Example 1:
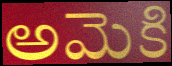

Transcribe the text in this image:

అమెకి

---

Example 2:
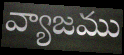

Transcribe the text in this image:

వ్యాజము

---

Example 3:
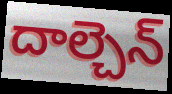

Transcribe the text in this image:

దాల్చెన్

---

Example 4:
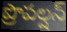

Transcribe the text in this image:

ప్రొపల్షన్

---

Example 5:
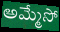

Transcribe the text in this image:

అమ్మేసో